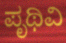
ಪೃಥಿವಿ